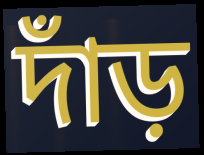
দাঁড়